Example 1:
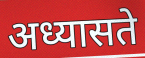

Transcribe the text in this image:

अध्यासते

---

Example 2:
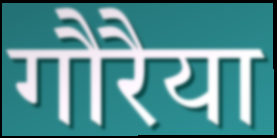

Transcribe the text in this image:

गौरैया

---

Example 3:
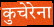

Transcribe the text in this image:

कुचेरेना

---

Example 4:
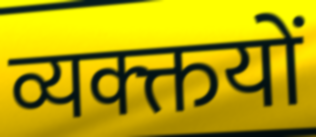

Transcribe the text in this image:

व्यक्क्तयों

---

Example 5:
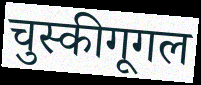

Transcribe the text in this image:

चुस्कीगूगल